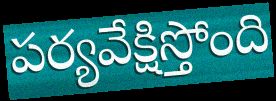
పర్యవేక్షిస్తోంది